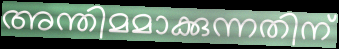
അന്തിമമാക്കുന്നതിന്